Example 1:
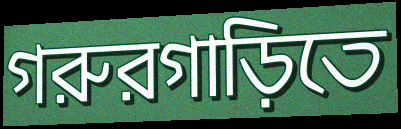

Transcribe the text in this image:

গরুরগাড়িতে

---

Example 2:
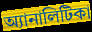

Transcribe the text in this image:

অ্যানালিটিকা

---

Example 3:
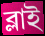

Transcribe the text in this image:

ব্লাই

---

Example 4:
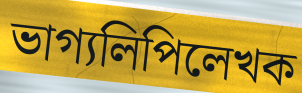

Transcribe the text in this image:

ভাগ্যলিপিলেখক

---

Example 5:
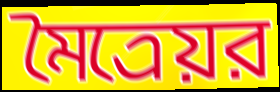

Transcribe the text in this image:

মৈত্রেয়র